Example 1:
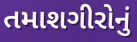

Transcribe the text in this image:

તમાશગીરોનું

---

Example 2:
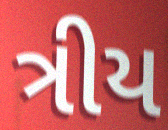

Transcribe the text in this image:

ત્રીય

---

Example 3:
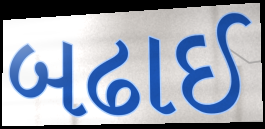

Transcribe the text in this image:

બઢાઈ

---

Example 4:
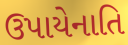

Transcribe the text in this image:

ઉપાયેનાતિ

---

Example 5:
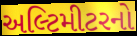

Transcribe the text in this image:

અલ્ટિમીટરનો